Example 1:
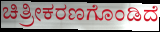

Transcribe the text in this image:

ಚಿತ್ರೀಕರಣಗೊಂಡಿದೆ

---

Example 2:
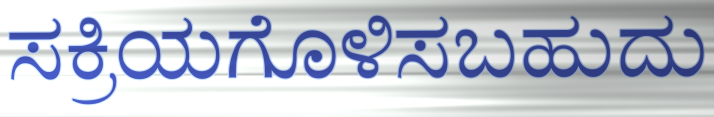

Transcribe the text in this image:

ಸಕ್ರಿಯಗೊಳಿಸಬಹುದು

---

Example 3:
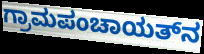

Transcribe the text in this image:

ಗ್ರಾಮಪಂಚಾಯತ್‌ನ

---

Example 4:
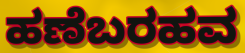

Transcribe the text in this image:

ಹಣೆಬರಹವ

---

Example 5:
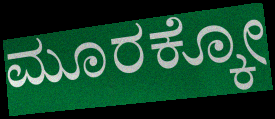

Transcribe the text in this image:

ಮೂರಕ್ಕೋ